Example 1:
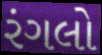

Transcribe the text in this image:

રંગલો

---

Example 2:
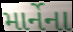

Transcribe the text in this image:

માર્નેના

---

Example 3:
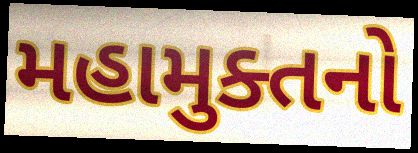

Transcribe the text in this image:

મહામુક્તનો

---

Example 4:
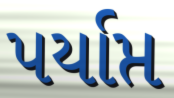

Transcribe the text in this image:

પર્યાપ્ત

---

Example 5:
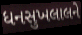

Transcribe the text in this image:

ધનસુખલાલને